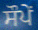
ਸੌਪੇਂ